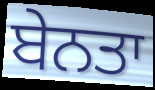
ਬੇਨਤਾ